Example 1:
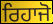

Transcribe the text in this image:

ਰਿਹਾਜੋ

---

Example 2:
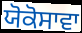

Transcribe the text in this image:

ਯੋਕੋਸਾਵਾ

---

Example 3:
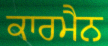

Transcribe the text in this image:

ਕਾਰਮੈਨ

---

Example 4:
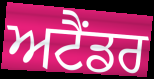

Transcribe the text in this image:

ਅਟੈਂਡਰ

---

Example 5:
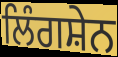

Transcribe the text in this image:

ਲਿੰਗਸ਼ੇਨ